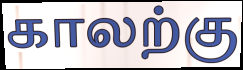
காலற்கு